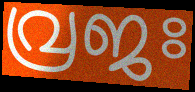
വ്രജഃ